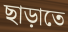
ছাড়াতে